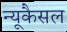
न्यूकैसल